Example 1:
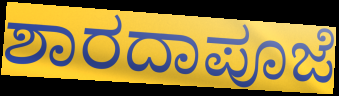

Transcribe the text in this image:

ಶಾರದಾಪೂಜೆ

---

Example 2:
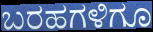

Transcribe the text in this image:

ಬರಹಗಳಿಗೂ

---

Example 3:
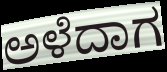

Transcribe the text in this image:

ಅಳೆದಾಗ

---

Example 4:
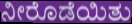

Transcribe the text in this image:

ನೀರೊಡೆಯಿತು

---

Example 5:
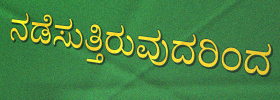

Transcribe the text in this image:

ನಡೆಸುತ್ತಿರುವುದರಿಂದ